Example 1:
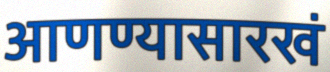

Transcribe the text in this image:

आणण्यासारखं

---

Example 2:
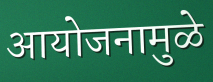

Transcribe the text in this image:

आयोजनामुळे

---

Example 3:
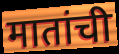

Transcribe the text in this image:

मातांची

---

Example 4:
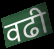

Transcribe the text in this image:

वढी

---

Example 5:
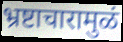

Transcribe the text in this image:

भ्रष्टाचारामुळं